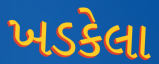
ખડકેલા